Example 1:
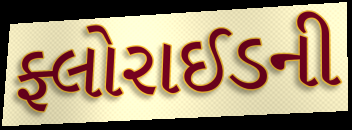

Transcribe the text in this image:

ફ્લોરાઈડની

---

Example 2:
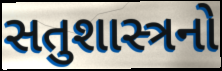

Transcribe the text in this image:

સતુશાસ્ત્રનો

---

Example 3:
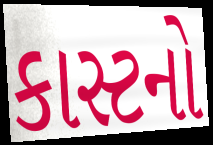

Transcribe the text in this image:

કાસ્ટનો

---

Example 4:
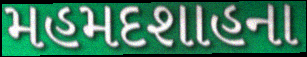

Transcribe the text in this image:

મહમદશાહના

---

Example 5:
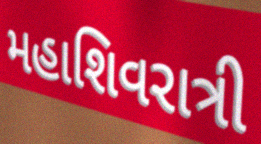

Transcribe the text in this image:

મહાશિવરાત્રી